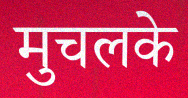
मुचलके